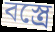
বস্ত্রে